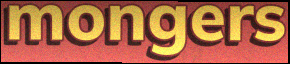
mongers